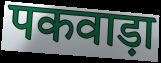
पकवाड़ा